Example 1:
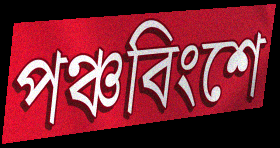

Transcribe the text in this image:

পঞ্চবিংশে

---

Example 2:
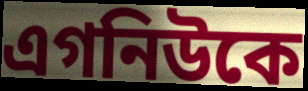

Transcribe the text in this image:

এগনিউকে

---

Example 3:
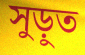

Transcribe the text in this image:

সুড়ুত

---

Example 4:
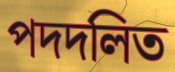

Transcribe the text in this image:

পদদলিত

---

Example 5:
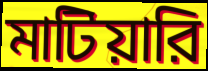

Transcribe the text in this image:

মাটিয়ারি